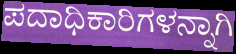
ಪದಾಧಿಕಾರಿಗಳನ್ನಾಗಿ